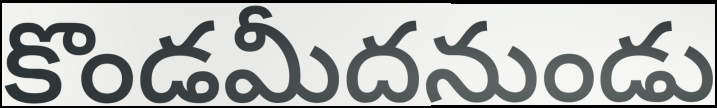
కొండమీదనుండు